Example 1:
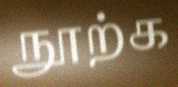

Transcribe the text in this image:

நூற்க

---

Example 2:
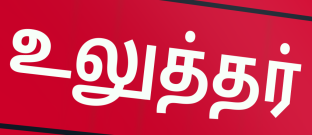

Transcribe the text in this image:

உலுத்தர்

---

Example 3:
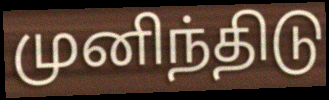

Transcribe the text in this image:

முனிந்திடு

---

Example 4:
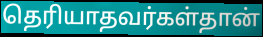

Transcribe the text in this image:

தெரியாதவர்கள்தான்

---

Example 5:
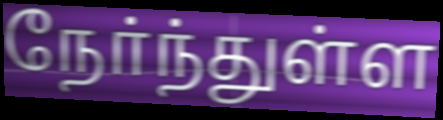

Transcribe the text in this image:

நேர்ந்துள்ள